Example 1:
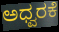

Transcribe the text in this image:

ಅಧ್ವರಕೆ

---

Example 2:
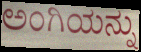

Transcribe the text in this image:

ಅಂಗಿಯನ್ನು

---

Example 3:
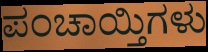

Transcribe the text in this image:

ಪಂಚಾಯ್ತಿಗಳು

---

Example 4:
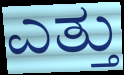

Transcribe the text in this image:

ಎತ್ತು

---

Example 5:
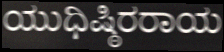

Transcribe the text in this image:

ಯುಧಿಷ್ಠಿರರಾಯ